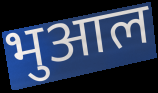
भुआल